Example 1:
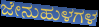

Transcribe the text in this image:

ಜೇನುಹುಳಗಳ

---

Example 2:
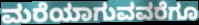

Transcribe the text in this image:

ಮರೆಯಾಗುವವರೆಗೂ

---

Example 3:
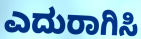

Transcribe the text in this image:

ಎದುರಾಗಿಸಿ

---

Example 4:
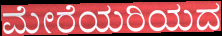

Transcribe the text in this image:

ಮೇರೆಯರಿಯದ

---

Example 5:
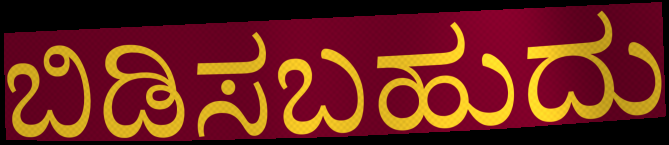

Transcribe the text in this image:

ಬಿಡಿಸಬಹುದು